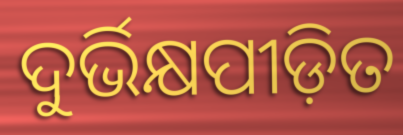
ଦୁର୍ଭିକ୍ଷପୀଡ଼ିତ